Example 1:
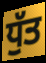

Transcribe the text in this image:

ਧੁੱਤ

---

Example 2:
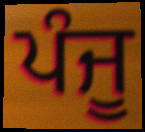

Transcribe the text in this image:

ਪੰਜੂ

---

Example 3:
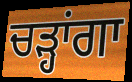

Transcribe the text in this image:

ਚੜ੍ਹਾਂਗਾ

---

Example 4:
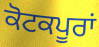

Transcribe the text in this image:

ਕੋਟਕਪੂਰਾਂ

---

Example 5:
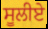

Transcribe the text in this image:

ਸੂਲੀਏ